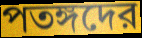
পতঙ্গদের